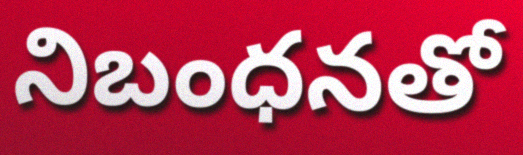
నిబంధనతో